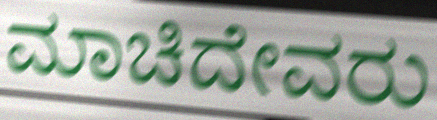
ಮಾಚಿದೇವರು